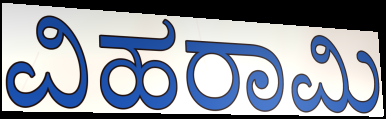
ವಿಹರಾಮಿ